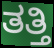
ತತ್ತಿ